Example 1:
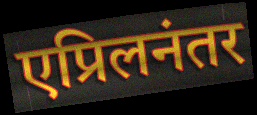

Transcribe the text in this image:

एप्रिलनंतर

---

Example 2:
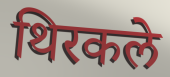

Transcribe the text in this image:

थिरकले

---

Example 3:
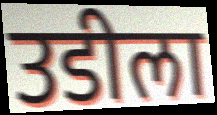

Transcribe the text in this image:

उडीला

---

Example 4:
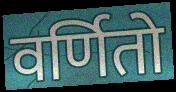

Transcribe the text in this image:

वर्णितो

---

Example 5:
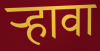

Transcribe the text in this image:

र्‍हावा